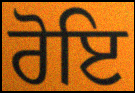
ਰੋਇ